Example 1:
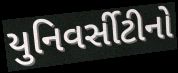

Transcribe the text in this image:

યુનિવર્સીટીનો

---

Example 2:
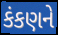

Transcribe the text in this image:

કંકણને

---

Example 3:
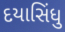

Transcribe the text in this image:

દયાસિંધુ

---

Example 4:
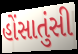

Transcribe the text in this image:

હોંસાતુંસી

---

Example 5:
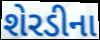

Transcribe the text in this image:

શેરડીના